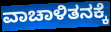
ವಾಚಾಳಿತನಕ್ಕೆ